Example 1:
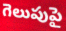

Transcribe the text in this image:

గెలుపుపై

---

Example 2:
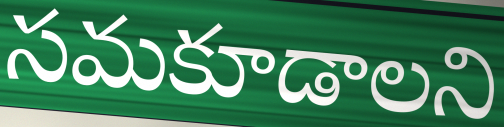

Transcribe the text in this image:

సమకూడాలని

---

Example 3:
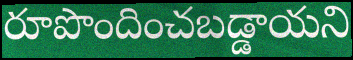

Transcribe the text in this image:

రూపొందించబడ్డాయని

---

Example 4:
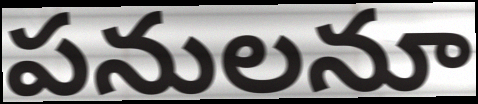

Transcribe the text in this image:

పనులనూ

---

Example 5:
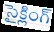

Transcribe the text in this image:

సైక్లింగ్